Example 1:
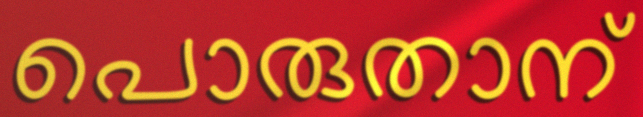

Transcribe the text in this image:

പൊരുതാന്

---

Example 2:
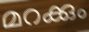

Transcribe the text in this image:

മറക്കും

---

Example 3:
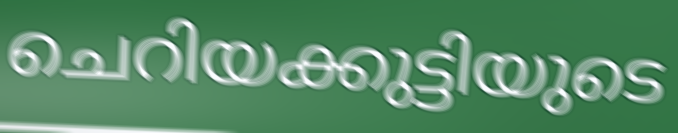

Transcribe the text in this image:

ചെറിയക്കുട്ടിയുടെ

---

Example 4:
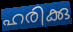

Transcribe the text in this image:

ഹരിക്കു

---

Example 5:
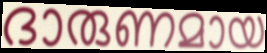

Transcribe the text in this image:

ദാരുണമായ